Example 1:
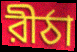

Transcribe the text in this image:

রীঠা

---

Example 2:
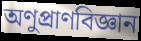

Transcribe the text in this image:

অণুপ্রাণবিজ্ঞান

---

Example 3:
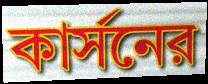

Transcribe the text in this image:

কার্সনের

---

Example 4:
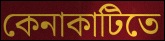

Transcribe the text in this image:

কেনাকাটিতে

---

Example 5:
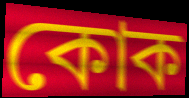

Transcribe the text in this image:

কোক